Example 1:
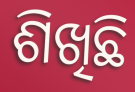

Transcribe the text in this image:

ଶିଖିଛି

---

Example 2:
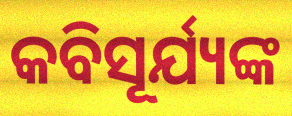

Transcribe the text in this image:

କବିସୂର୍ଯ୍ୟଙ୍କ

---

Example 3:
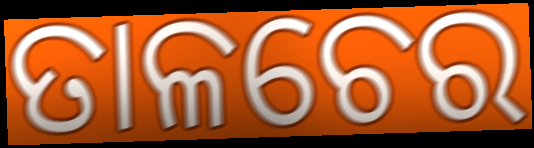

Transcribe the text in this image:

ତାଳଚେର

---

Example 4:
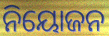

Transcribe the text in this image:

ନିୟୋଜନ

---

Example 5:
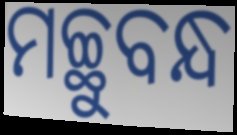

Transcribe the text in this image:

ମଚ୍ଛୁବନ୍ଧ